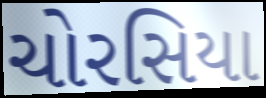
ચોરસિયા